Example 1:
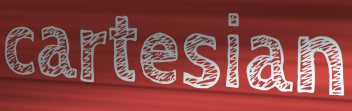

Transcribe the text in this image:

cartesian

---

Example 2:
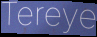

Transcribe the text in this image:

Tereye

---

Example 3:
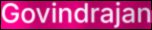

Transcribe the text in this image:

Govindrajan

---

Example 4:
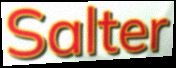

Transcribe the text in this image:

Salter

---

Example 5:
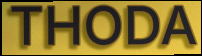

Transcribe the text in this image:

THODA